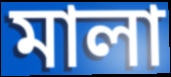
মালা